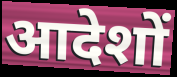
आदेशों